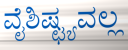
ವೈಶಿಷ್ಟ್ಯವಲ್ಲ